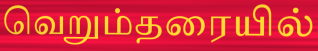
வெறும்தரையில்